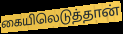
கையிலெடுத்தான்